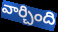
వార్చింది